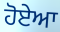
ਹੋਏਆ